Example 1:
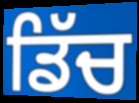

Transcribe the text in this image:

ਡਿੱਚ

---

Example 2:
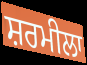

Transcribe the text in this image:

ਸ਼ਰਮੀਲਾ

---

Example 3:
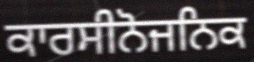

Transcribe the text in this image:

ਕਾਰਸੀਨੋਜਨਿਕ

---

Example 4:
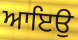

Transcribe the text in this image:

ਆਇਉ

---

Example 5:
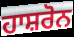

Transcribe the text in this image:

ਹਾਸ਼ਰੋਨ